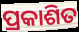
ପ୍ରକାଶିତ